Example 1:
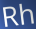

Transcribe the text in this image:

Rh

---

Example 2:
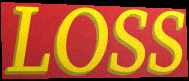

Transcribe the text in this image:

LOSS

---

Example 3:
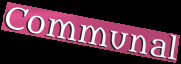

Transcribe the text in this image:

Communal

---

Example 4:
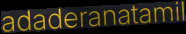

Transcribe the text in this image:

adaderanatamil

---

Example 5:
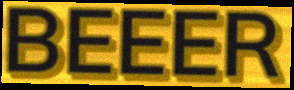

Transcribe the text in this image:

BEEER